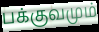
பக்குவமும்